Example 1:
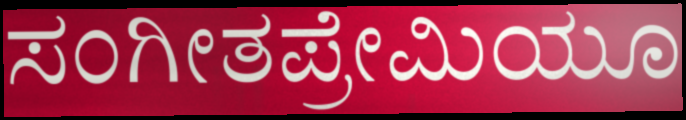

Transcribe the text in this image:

ಸಂಗೀತಪ್ರೇಮಿಯೂ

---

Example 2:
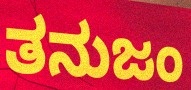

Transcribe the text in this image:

ತನುಜಂ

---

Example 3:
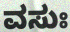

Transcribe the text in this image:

ವಸುಃ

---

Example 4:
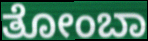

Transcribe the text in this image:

ತೋಂಬಾ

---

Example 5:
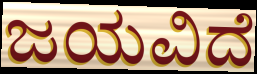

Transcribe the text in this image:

ಜಯವಿದೆ